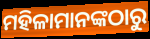
ମହିଳାମାନଙ୍କଠାରୁ